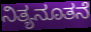
ನಿತ್ಯನೂತನೆ